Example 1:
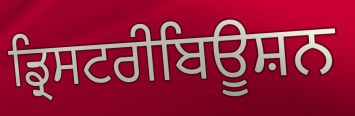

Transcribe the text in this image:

ਡ੍ਰਿਸਟਰੀਬਿਊਸ਼ਨ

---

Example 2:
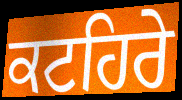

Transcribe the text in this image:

ਕਟਹਿਰੇ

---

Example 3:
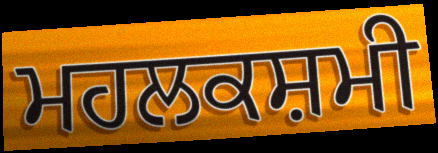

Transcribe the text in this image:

ਮਹਲਕਸ਼ਮੀ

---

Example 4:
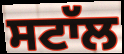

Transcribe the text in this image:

ਸਟਾੱਲ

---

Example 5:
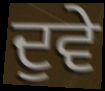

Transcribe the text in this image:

ਦੁਵੇ